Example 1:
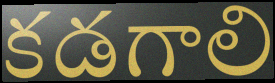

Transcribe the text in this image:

కడగాలి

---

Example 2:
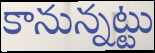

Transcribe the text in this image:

కానున్నట్టు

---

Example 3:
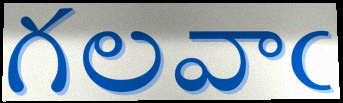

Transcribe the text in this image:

గలవాఁ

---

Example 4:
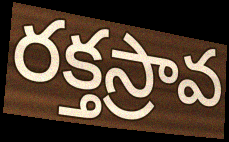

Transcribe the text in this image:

రక్తస్రావ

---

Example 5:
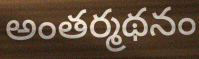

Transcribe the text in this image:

అంతర్మథనం